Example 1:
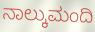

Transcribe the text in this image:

ನಾಲ್ಕುಮಂದಿ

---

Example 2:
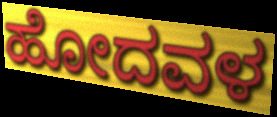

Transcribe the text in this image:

ಹೋದವಳ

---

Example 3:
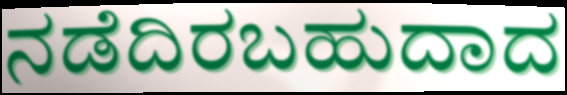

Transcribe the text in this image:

ನಡೆದಿರಬಹುದಾದ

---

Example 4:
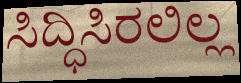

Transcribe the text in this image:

ಸಿದ್ಧಿಸಿರಲಿಲ್ಲ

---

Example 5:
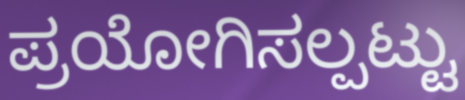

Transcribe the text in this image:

ಪ್ರಯೋಗಿಸಲ್ಪಟ್ಟು